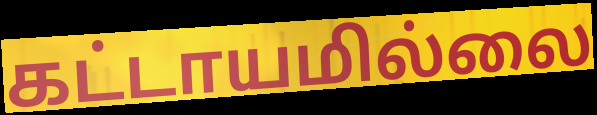
கட்டாயமில்லை